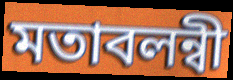
মতাবলন্বী